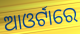
ଆଓର୍ଟାରେ